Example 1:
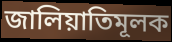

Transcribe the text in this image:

জালিয়াতিমূলক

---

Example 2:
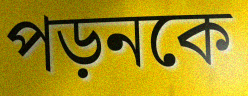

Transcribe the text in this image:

পড়নকে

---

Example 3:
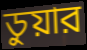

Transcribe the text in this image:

ডুয়ার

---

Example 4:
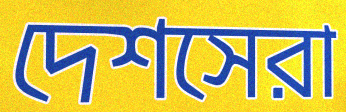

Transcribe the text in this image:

দেশসেরা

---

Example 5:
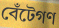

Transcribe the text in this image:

বেঁটেগণ